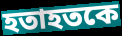
হতাহতকে